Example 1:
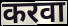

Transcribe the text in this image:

करवा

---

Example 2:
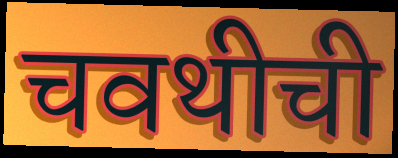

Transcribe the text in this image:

चवथीची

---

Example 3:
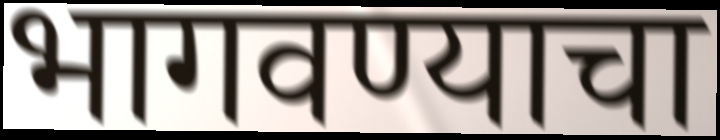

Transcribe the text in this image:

भागवण्याचा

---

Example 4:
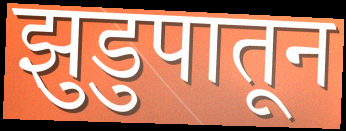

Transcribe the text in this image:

झुडुपातून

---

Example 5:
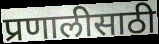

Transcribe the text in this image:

प्रणालीसाठी